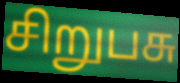
சிறுபசு